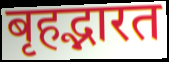
बृहद्भारत